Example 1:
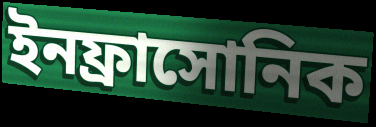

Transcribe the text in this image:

ইনফ্রাসোনিক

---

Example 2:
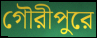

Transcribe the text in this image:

গৌরীপুরে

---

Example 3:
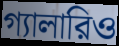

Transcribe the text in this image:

গ্যালারিও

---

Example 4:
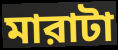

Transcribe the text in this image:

মারাটা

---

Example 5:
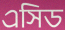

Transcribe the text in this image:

এসিড